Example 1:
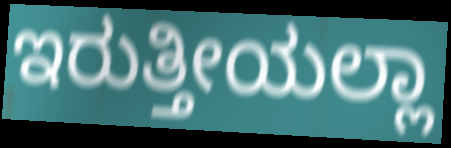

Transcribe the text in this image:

ಇರುತ್ತೀಯಲ್ಲಾ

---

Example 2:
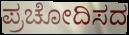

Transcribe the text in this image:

ಪ್ರಚೋದಿಸದ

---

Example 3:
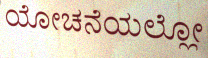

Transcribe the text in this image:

ಯೋಚನೆಯಲ್ಲೋ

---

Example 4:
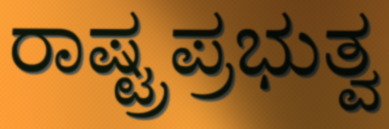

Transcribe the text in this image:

ರಾಷ್ಟ್ರಪ್ರಭುತ್ವ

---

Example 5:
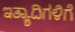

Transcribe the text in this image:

ಇತ್ಯಾದಿಗಳಿಗೆ